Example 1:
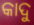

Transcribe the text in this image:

କାଦୁ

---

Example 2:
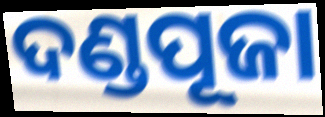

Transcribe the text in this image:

ଦଣ୍ଡପୂଜା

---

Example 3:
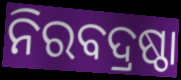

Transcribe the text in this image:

ନିରବଦ୍ରଷ୍ଠା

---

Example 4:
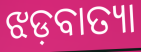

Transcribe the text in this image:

ଝଡ଼ବାତ୍ୟା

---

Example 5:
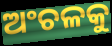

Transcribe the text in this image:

ଅଂଚଳକୁ